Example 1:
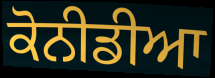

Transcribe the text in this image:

ਕੋਨੀਡੀਆ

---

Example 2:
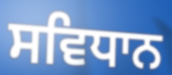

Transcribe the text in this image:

ਸਵਿਧਾਨ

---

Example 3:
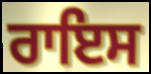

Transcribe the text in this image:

ਰਾਇਸ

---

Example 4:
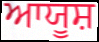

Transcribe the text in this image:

ਆਯੂਸ਼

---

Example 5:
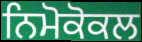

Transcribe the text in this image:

ਨਿਮੋਕੋਕਲ